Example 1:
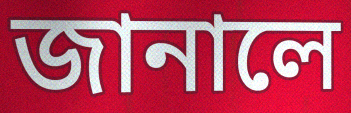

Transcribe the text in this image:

জানালে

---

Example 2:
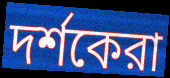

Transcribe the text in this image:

দর্শকেরা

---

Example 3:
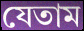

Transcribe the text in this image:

যেতাম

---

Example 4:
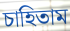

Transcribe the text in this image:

চাহিতাম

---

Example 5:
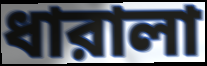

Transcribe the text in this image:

ধারালা